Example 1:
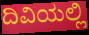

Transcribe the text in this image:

ದಿವಿಯಲ್ಲಿ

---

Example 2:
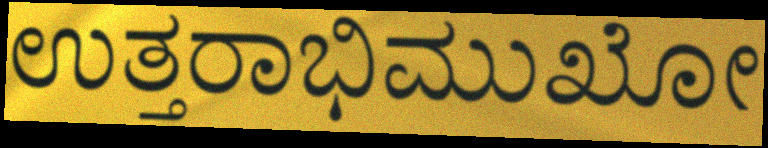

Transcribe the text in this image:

ಉತ್ತರಾಭಿಮುಖೋ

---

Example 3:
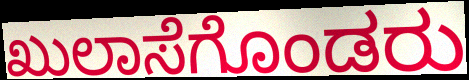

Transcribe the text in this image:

ಖುಲಾಸೆಗೊಂಡರು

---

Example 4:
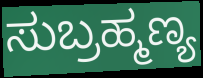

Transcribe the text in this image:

ಸುಬ್ರಹ್ಮಣ್ಯ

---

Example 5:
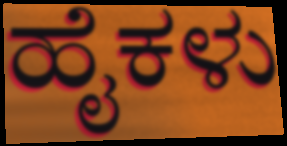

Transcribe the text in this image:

ಹೈಕಳು